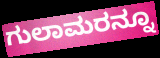
ಗುಲಾಮರನ್ನೂ